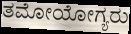
ತಮೋಯೋಗ್ಯರು